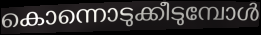
കൊന്നൊടുക്കീടുമ്പോൾ